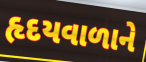
હૃદયવાળાને